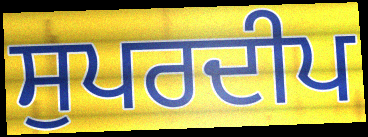
ਸੁਪਰਦੀਪ